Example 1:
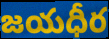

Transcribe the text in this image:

జయధీర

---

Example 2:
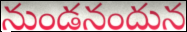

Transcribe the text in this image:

నుండనందున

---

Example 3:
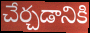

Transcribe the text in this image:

చేర్చడానికి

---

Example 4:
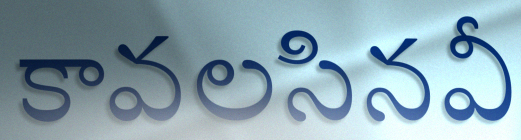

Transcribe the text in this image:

కావలసినవీ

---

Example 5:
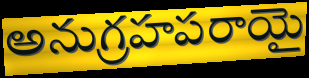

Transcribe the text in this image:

అనుగ్రహపరాయై